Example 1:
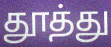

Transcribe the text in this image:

தூத்து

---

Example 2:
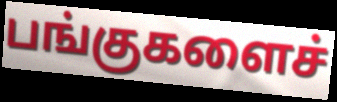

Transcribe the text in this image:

பங்குகளைச்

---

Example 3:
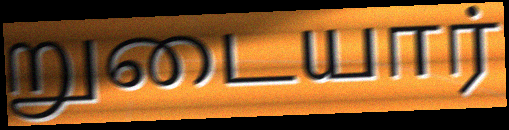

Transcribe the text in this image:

றுடையார்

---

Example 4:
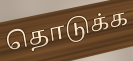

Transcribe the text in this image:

தொடுக்க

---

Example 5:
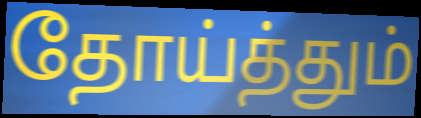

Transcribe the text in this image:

தோய்த்தும்